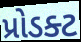
પ્રોડક્ટ